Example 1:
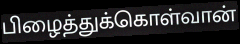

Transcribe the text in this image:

பிழைத்துக்கொள்வான்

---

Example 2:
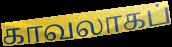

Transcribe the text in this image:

காவலாகப்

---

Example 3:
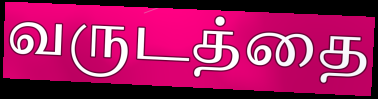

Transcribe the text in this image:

வருடத்தை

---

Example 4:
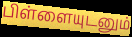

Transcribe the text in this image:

பிள்ளையுடனும்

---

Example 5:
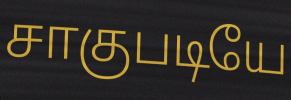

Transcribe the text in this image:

சாகுபடியே